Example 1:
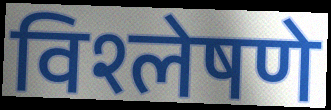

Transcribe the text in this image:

विश्लेषणे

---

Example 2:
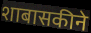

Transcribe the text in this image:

शाबासकीने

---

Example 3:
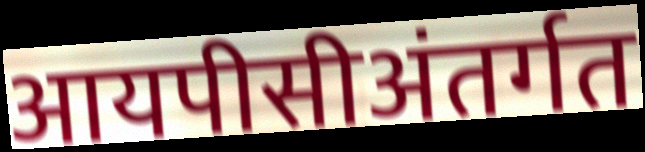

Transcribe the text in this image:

आयपीसीअंतर्गत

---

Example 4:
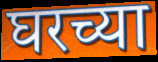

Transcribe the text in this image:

घरच्या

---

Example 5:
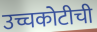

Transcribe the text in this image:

उच्चकोटीची